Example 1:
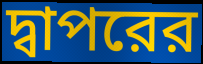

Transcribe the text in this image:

দ্বাপরের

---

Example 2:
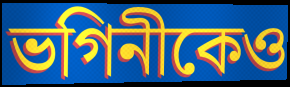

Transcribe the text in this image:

ভগিনীকেও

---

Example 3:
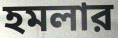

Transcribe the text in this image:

হমলার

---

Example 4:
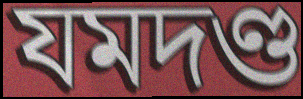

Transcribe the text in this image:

যমদণ্ড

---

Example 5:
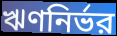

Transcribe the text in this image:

ঋণনির্ভর